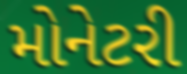
મોનેટરી